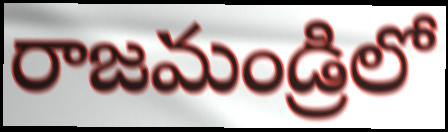
రాజమండ్రిలో